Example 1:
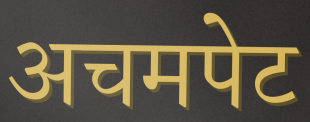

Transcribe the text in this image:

अचमपेट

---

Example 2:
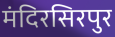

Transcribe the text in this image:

मंदिरसिरपुर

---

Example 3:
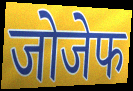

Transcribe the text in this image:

जोजेफ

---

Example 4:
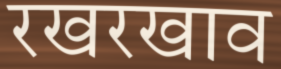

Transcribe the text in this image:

रखरखाव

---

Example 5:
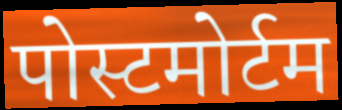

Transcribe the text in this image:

पोस्टमोर्टम